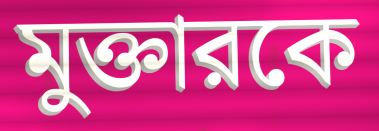
মুক্তারকে